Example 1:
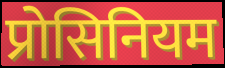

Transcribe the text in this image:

प्रोसिनियम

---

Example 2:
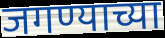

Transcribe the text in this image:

जगण्याच्या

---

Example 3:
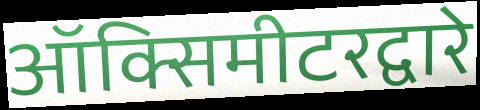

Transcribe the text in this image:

ऑक्सिमीटरद्वारे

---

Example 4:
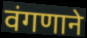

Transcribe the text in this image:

वंगणाने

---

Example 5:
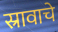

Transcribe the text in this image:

स्रावाचे